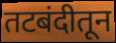
तटबंदीतून